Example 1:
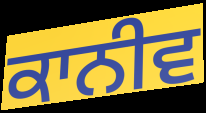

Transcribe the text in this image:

ਕਾਨੀਵ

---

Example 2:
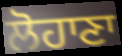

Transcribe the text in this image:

ਲੋਹਾਣਾ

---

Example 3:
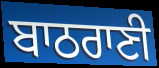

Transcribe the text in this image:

ਬਾਠਰਾਣੀ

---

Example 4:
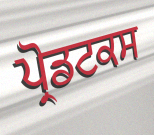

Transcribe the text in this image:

ਪ੍ਰੋਡਟਕਸ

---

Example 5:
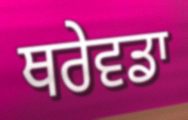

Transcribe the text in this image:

ਥਰੇਵਡਾ